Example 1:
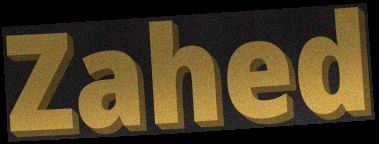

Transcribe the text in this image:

Zahed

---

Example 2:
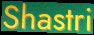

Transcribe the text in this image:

Shastri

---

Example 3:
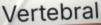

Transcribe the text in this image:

Vertebral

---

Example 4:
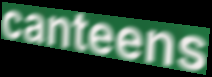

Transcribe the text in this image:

canteens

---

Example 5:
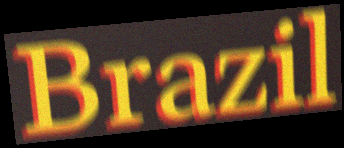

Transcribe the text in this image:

Brazil